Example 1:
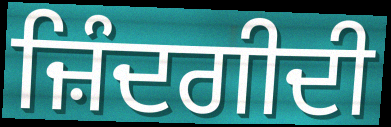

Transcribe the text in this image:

ਜ਼ਿੰਦਗੀਦੀ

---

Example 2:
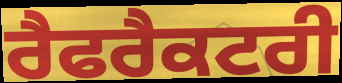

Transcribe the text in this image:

ਰੈਫਰੈਕਟਰੀ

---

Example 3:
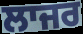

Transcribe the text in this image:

ਲਾਜਰ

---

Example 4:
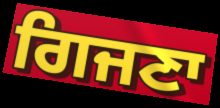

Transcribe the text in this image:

ਗਿਜਣਾ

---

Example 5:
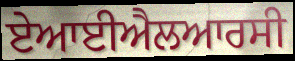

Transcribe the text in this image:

ਏਆਈਐਲਆਰਸੀ